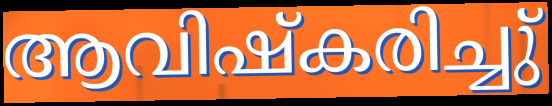
ആവിഷ്കരിച്ചു്